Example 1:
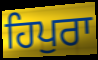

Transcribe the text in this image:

ਹਿਪੁਰਾ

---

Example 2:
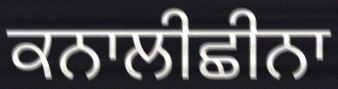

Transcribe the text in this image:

ਕਨਾਲੀਛੀਨਾ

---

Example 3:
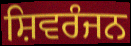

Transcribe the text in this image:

ਸ਼ਿਵਰੰਜਨ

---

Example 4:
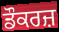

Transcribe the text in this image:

ਡੌਕਰਜ਼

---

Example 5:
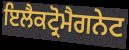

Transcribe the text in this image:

ਇਲੈਕਟ੍ਰੋਮੈਗਨੇਟ